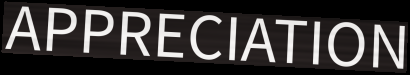
APPRECIATION